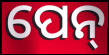
ପେନ୍